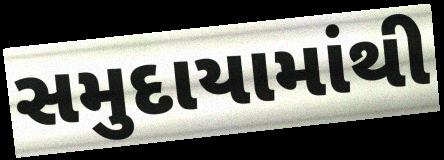
સમુદાયામાંથી